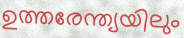
ഉത്തരേന്ത്യയിലും